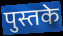
पुस्‍तके